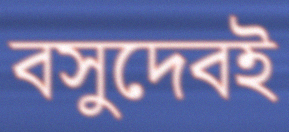
বসুদেবই